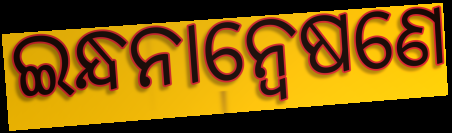
ଇନ୍ଧନାନ୍ଵେଷଣେ